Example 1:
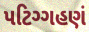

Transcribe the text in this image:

પટિગ્ગહણં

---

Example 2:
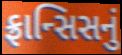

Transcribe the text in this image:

ફ્રાન્સિસનું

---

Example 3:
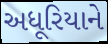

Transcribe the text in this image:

અધૂરિયાને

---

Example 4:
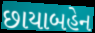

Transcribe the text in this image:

છાયાબહેન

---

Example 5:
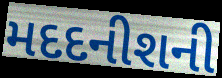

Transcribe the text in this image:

મદદનીશની